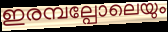
ഇരമ്പല്പോലെയും